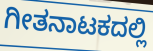
ಗೀತನಾಟಕದಲ್ಲಿ